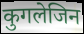
कुगलेजिन